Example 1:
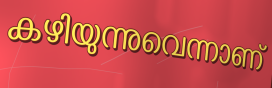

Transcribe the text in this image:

കഴിയുന്നുവെന്നാണ്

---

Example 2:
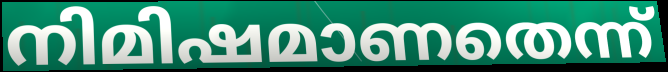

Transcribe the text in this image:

നിമിഷമാണതെന്ന്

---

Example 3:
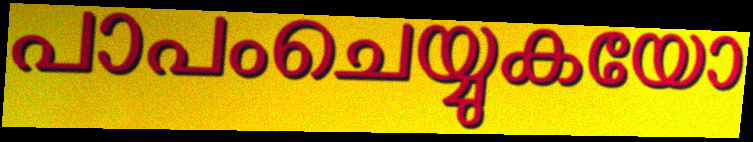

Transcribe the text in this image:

പാപംചെയ്യുകയോ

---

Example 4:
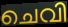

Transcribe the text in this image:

ചെവി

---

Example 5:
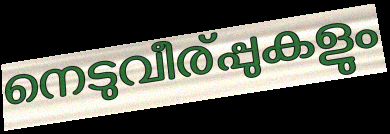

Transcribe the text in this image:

നെടുവീര്പ്പുകളും